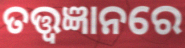
ତତ୍ତ୍ୱଜ୍ଞାନରେ